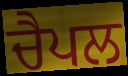
ਚੈਪਲ